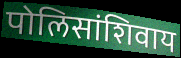
पोलिसांशिवाय